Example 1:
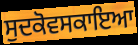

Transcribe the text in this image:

ਸੁਦਕੋਵਸਕਾਇਆ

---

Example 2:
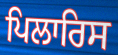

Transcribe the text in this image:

ਪਿਲਾਰਿਸ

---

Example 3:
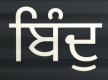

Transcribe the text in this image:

ਬਿੰਦੁ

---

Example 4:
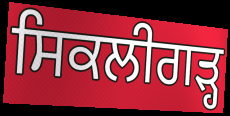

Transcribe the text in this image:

ਸਿਕਲੀਗੜ੍ਹ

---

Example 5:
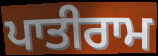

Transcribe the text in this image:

ਪਾਤੀਰਾਮ